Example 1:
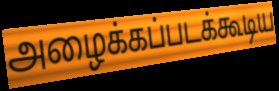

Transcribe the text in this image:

அழைக்கப்படக்கூடிய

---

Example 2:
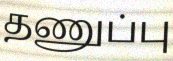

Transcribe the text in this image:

தணுப்பு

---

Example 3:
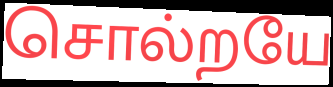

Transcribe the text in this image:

சொல்றயே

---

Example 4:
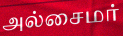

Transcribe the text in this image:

அல்சைமர்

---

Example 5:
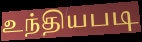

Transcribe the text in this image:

உந்தியபடி